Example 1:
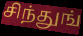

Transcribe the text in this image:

சிந்துங்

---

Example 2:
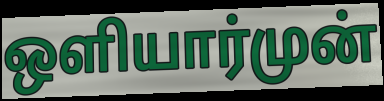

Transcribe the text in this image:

ஒளியார்முன்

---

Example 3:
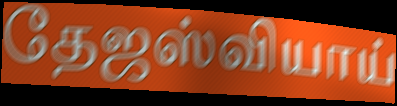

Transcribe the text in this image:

தேஜஸ்வியாய்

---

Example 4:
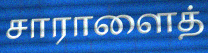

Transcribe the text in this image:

சாராளைத்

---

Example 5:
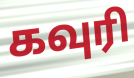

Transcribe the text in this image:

கவுரி